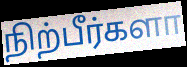
நிற்பீர்களா